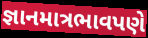
જ્ઞાનમાત્રભાવપણે